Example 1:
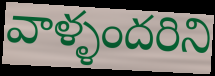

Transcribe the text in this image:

వాళ్ళందరిని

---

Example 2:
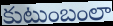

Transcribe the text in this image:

కుటుంబంలా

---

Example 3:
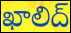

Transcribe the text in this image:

ఖాలిద్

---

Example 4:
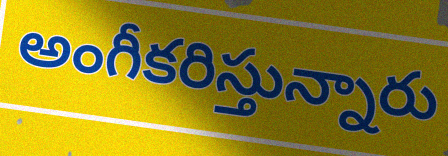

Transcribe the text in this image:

అంగీకరిస్తున్నారు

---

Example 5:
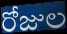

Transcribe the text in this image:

రోజుల